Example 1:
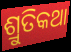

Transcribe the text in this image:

ଶ୍ରୁତିକଥା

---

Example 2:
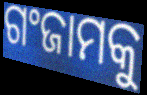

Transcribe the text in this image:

ଗଂଜାମକୁ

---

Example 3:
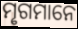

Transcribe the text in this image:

ମୃଗମାନେ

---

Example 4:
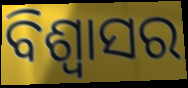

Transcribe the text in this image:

ବିଶ୍ୱାସର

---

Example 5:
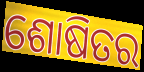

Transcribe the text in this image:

ଶୋଷିତର